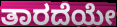
ತಾರದೆಯೇ